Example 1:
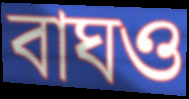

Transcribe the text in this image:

বাঘও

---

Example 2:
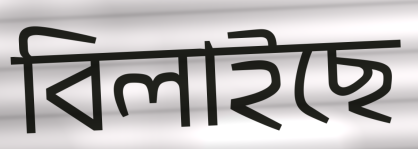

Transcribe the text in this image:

বিলাইছে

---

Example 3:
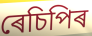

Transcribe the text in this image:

ৰেচিপিৰ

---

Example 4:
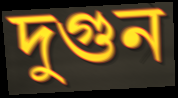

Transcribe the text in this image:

দুগুন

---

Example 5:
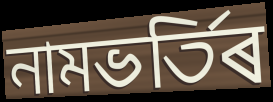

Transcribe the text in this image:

নামভৰ্তিৰ